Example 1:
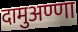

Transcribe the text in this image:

दामुअण्णा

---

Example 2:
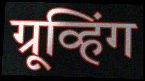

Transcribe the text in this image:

ग्रूव्हिंग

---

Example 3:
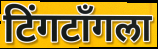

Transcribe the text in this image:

टिंगटॉंगला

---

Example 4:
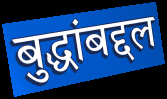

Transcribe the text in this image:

बुद्धांबद्दल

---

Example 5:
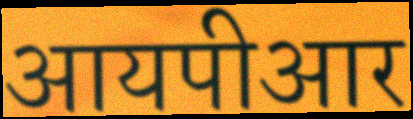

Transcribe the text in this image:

आयपीआर